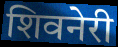
शिवनेरी